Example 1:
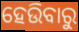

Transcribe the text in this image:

ହେଉିବାରୁ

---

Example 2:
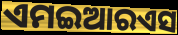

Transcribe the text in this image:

ଏମଇଆରଏସ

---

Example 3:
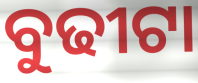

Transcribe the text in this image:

ବୁଢୀଟା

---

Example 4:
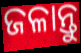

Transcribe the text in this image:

ଜଳାନ୍ତୁ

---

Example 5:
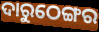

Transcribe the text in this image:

ଦାରୁଠେଙ୍ଗର